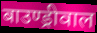
बाउण्ड्रीवाल